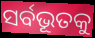
ସର୍ବଭୂତକୁ